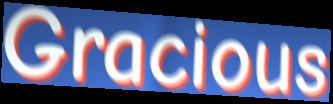
Gracious